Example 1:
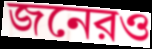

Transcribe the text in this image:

জনেরও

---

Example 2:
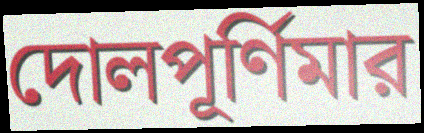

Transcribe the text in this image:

দোলপূর্ণিমার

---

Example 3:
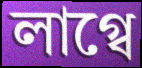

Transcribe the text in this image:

লাগ্বে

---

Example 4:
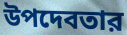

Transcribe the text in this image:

উপদেবতার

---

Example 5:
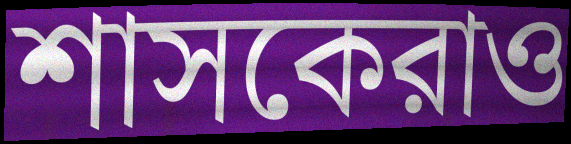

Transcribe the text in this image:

শাসকেরাও